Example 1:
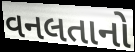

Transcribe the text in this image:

વનલતાનો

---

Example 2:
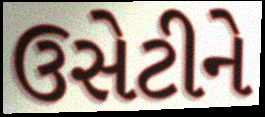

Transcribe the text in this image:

ઉસેટીને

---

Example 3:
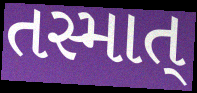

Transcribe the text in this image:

તસ્માત્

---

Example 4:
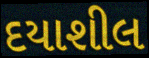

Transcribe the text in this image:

દયાશીલ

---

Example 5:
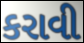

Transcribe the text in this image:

કરાવી